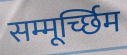
सम्मूर्च्छिम